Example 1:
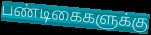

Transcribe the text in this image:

பண்டிகைகளுக்கு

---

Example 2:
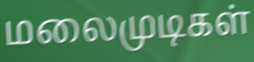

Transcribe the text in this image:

மலைமுடிகள்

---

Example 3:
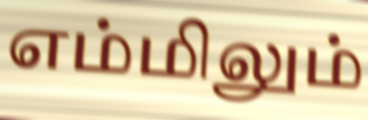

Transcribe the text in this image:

எம்மிலும்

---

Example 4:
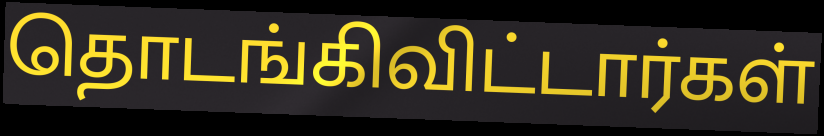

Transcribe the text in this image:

தொடங்கிவிட்டார்கள்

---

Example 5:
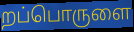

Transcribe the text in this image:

றப்பொருளை